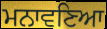
ਮਨਾਵਣਿਆ